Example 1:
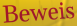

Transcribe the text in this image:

Beweis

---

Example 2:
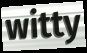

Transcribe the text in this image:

witty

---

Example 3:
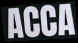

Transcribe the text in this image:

ACCA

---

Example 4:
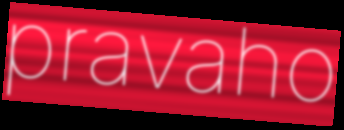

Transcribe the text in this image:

pravaho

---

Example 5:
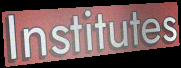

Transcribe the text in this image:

Institutes